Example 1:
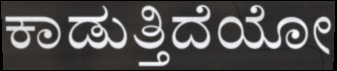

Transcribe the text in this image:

ಕಾಡುತ್ತಿದೆಯೋ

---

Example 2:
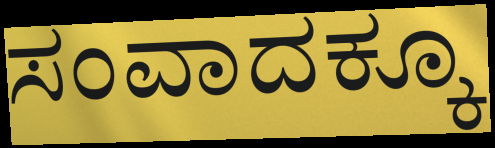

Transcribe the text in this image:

ಸಂವಾದಕ್ಕೂ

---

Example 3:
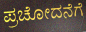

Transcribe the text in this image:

ಪ್ರಚೋದನೆಗೆ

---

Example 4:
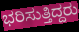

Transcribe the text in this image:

ಭರಿಸುತ್ತಿದ್ದರು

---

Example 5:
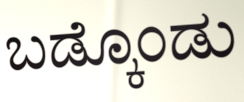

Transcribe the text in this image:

ಬಡ್ಕೊಂಡು